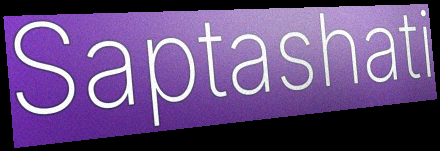
Saptashati